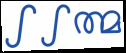
ഽഽത്മ